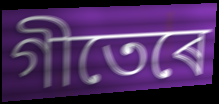
গীতেৰে